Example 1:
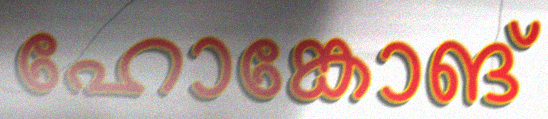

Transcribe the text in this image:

ഹോങ്കോങ്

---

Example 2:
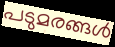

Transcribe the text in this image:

പടുമരങ്ങൾ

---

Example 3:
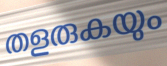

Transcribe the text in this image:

തളരുകയും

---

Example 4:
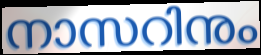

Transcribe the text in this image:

നാസറിനും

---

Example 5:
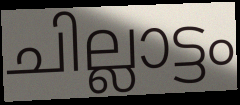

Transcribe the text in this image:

ചില്ലാട്ടം